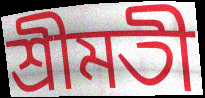
শ্রীমতী